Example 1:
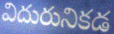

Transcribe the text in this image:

విదురునికడ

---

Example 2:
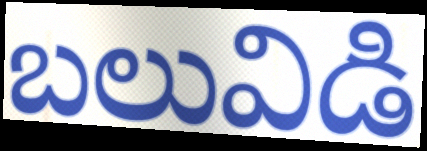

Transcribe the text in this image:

బలువిడి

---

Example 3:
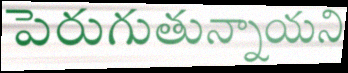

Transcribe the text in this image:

పెరుగుతున్నాయని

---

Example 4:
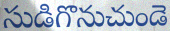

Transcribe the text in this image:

సుడిగొనుచుండె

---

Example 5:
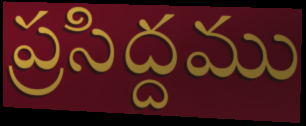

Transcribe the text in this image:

ప్రసిద్దము